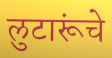
लुटारूंचे